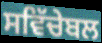
ਸਵਿੱਚੇਬਲ